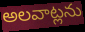
అలవాట్లను